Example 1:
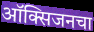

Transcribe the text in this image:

ऑक्सिजनचा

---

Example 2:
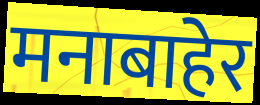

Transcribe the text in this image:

मनाबाहेर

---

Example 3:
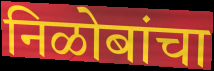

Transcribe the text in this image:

निळोबांचा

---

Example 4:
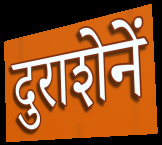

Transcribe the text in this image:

दुराशेनें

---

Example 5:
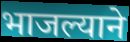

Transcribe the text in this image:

भाजल्याने